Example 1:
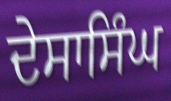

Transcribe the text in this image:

ਦੇਸਾਸਿੰਘ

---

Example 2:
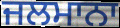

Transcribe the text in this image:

ਜਲਮਾਨਾ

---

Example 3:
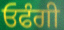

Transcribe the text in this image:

ਓਫੰਗੀ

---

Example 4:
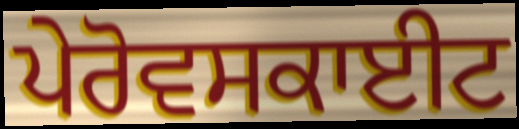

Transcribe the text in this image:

ਪੇਰੋਵਸਕਾਈਟ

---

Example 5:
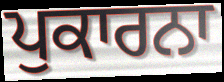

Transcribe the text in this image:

ਪੁਕਾਰਨਾ